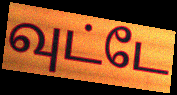
வுட்டே